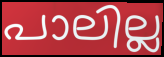
പാലില്ല